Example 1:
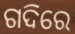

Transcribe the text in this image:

ଗଦିରେ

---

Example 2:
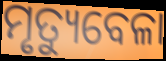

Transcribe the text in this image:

ମୃତ୍ୟୁବେଳା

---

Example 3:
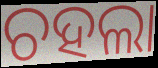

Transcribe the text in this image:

ଚହଲା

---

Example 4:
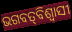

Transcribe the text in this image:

ଭଗବତ୍‌ବିଶ୍ଵାସୀ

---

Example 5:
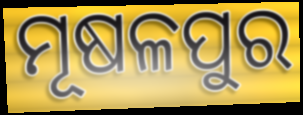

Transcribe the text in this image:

ମୂଷଳପୁର